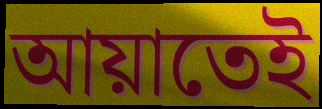
আয়াতেই